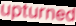
upturned